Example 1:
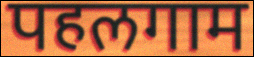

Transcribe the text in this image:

पहलगाम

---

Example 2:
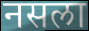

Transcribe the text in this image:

नसला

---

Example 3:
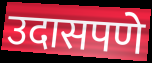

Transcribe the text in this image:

उदासपणे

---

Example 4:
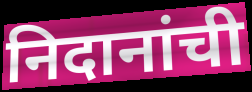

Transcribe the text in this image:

निदानांची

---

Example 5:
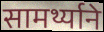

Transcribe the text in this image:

सामर्थ्याने